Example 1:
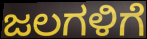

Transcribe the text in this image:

ಜಲಗಳಿಗೆ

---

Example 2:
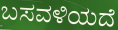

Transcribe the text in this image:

ಬಸವಳಿಯದೆ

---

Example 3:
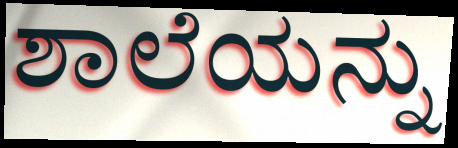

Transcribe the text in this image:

ಶಾಲೆಯನ್ನು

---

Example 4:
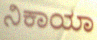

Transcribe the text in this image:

ನಿಕಾಯಾ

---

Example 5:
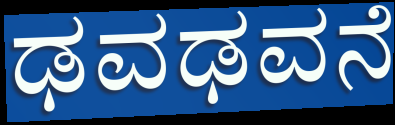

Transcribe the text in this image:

ಢವಢವನೆ